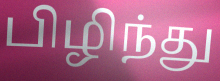
பிழிந்து